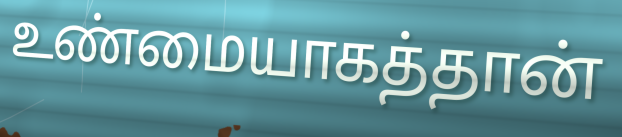
உண்மையாகத்தான்